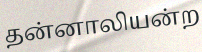
தன்னாலியன்ற